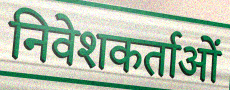
निवेशकर्ताओं